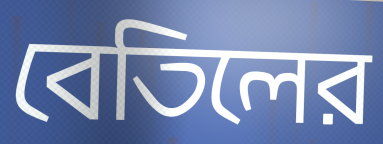
বেতিলের